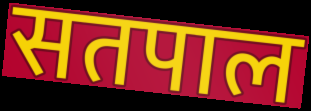
सतपाल